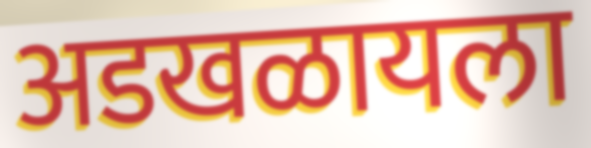
अडखळायला